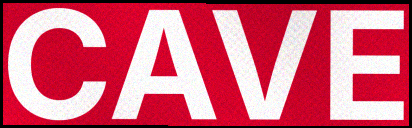
CAVE